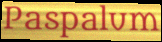
Paspalum